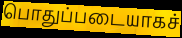
பொதுப்படையாகச்